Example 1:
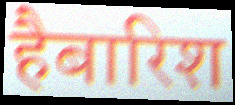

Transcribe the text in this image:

हैबारिश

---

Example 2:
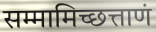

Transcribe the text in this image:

सम्मामिच्छत्ताणं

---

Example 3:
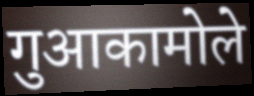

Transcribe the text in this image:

गुआकामोले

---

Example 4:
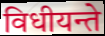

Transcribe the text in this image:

विधीयन्ते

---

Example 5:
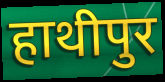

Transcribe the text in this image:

हाथीपुर